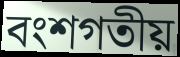
বংশগতীয়